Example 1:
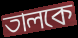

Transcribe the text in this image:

তালকে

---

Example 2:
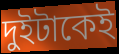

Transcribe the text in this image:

দুইটাকেই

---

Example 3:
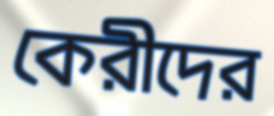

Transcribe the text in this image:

কেরীদের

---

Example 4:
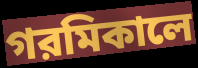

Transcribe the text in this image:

গরমিকালে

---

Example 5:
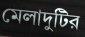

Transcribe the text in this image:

মেলাদুটির